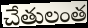
చేతులంత